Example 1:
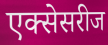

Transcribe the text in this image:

एक्सेसरीज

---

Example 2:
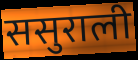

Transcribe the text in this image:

ससुराली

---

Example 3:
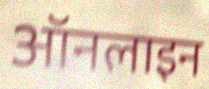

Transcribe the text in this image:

ऑनलाइन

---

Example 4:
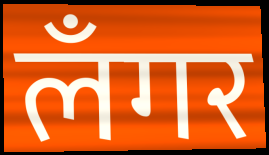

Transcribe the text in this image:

लँगर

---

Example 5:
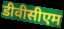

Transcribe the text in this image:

डीवीसीएम